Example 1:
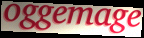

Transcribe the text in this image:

oggemage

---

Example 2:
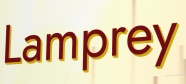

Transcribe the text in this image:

Lamprey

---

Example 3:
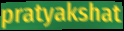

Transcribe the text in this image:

pratyakshat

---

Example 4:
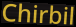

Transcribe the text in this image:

Chirbil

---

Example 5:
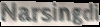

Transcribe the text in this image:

Narsingdi